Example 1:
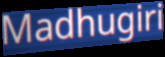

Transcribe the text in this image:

Madhugiri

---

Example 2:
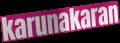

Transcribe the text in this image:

karunakaran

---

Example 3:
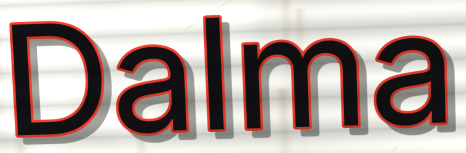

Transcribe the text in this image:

Dalma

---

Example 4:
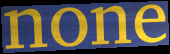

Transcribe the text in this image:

none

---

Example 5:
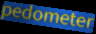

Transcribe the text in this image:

pedometer